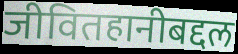
जीवितहानीबद्दल